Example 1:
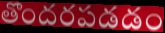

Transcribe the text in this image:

తొందరపడడం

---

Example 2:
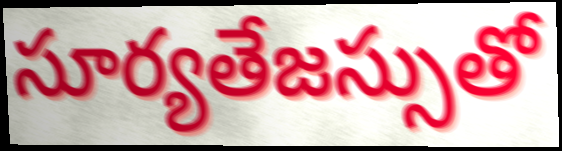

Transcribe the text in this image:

సూర్యతేజస్సుతో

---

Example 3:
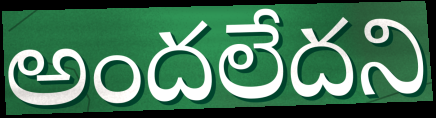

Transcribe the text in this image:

అందలేదని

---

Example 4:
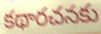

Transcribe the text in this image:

కథారచనకు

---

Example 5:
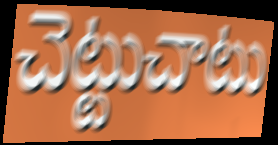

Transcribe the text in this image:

చెట్టుచాటు